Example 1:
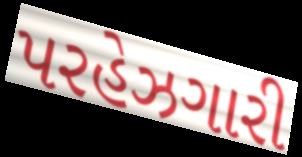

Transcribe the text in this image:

પરહેઝગારી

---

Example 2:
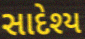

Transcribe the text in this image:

સાદેશ્ય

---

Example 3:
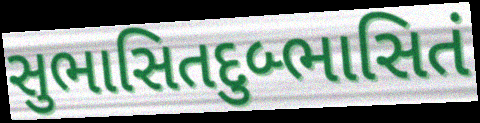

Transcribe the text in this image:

સુભાસિતદુબ્ભાસિતં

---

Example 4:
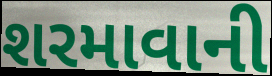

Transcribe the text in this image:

શરમાવાની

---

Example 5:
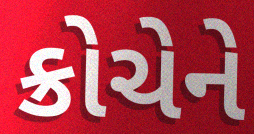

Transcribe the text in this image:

ક્રોચેને